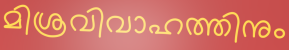
മിശ്രവിവാഹത്തിനും